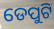
ଡେପୁଟି